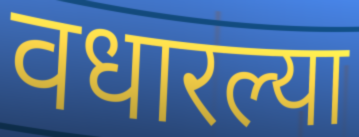
वधारल्या